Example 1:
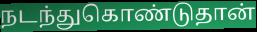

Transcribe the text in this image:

நடந்துகொண்டுதான்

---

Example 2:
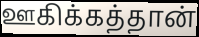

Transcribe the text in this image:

ஊகிக்கத்தான்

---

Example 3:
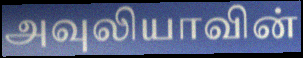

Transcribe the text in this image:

அவுலியாவின்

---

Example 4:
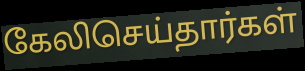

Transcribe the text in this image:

கேலிசெய்தார்கள்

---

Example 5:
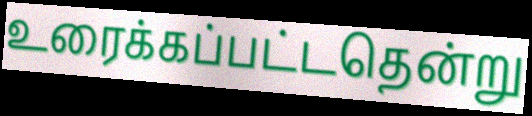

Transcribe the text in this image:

உரைக்கப்பட்டதென்று